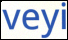
veyi